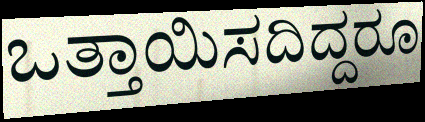
ಒತ್ತಾಯಿಸದಿದ್ದರೂ